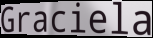
Graciela